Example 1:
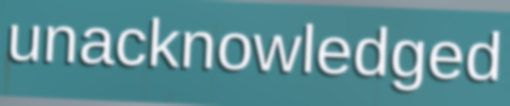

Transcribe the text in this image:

unacknowledged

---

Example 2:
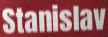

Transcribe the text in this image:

Stanislav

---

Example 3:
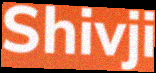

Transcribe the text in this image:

Shivji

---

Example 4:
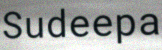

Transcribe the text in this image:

Sudeepa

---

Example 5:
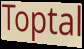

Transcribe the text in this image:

Toptal